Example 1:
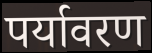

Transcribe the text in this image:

पर्यावरण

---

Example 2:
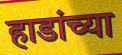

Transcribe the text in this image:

हाडांच्या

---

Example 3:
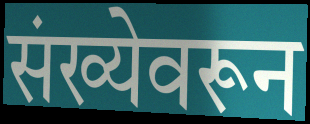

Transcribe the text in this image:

संख्येवरून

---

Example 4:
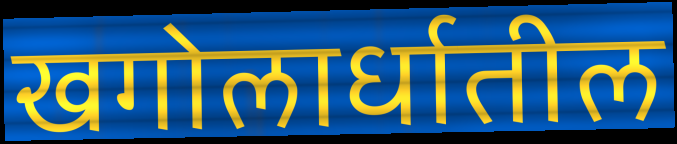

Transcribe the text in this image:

खगोलार्धातील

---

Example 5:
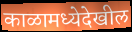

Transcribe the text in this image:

काळामध्येदेखील